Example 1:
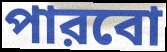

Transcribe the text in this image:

পারবো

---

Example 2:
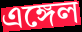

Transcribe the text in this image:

এঙ্গেল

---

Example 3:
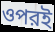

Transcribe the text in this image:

ওপরই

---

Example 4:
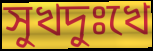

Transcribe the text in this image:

সুখদুঃখে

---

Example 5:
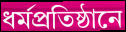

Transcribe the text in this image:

ধর্মপ্রতিষ্ঠানে